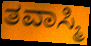
ತವಾಸ್ಮಿ